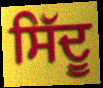
ਸਿੱਦੂ